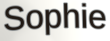
Sophie